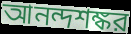
আনন্দশঙ্কর